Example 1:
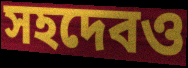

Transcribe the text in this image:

সহদেবও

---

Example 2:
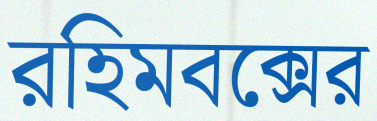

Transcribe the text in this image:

রহিমবক্সের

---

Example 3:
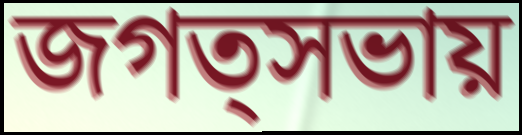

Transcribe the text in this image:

জগত্সভায়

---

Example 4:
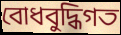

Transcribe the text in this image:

বোধবুদ্ধিগত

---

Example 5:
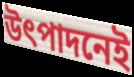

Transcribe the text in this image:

উৎপাদনেই